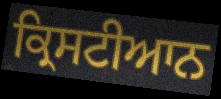
ਕ੍ਰਿਸਟੀਆਨ